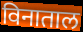
विनाताल